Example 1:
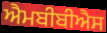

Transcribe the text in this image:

ਐਮਬੀਬੀਐਸ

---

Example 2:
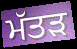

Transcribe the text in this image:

ਮੱਤੜ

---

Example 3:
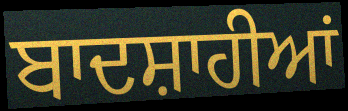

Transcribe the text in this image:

ਬਾਦਸ਼ਾਹੀਆਂ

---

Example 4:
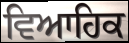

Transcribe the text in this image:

ਵਿਆਹਿਕ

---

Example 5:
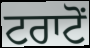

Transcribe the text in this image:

ਟਰਾਟੋਂ